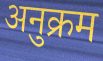
अनुक्रम